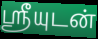
ஸ்ரீயுடன்